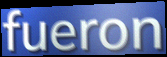
fueron